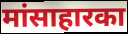
मांसाहारका